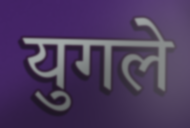
युगले